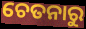
ଚେତନାରୁ